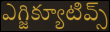
ఎగ్జిక్యూటివ్స్